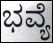
ಭವ್ಯೆ